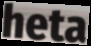
heta